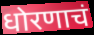
धोरणाचं